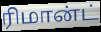
ரிமான்ட்